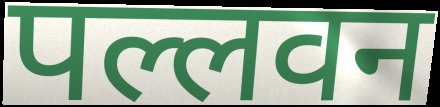
पल्लवन